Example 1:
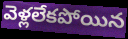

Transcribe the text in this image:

వెళ్లలేకపోయిన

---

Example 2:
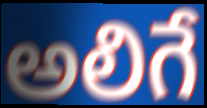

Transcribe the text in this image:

అలిగే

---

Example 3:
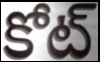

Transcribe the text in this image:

కోట్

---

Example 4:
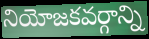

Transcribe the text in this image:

నియోజకవర్గాన్ని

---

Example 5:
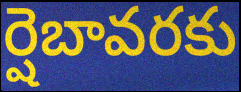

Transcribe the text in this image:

ర్షెబావరకు